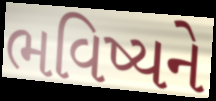
ભવિષ્યને